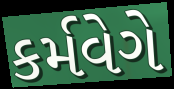
કર્મવેગે